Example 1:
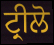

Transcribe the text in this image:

ਟ੍ਰੀਲੋ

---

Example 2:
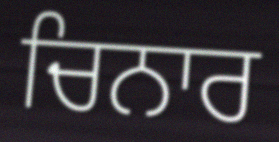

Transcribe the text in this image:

ਚਿਨਾਰ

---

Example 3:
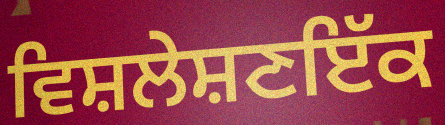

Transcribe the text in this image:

ਵਿਸ਼ਲੇਸ਼ਣਇੱਕ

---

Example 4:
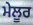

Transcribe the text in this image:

ਮੇਲੂਰ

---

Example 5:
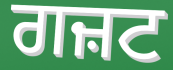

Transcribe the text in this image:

ਗਜ਼ਟ